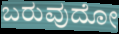
ಬರುವುದೋ